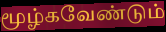
மூழ்கவேண்டும்